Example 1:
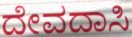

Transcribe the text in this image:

ದೇವದಾಸಿ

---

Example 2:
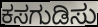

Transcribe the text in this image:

ಕಸಗುಡಿಸು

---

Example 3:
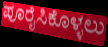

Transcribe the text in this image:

ಪೂರೈಸಿಕೊಳ್ಳಲು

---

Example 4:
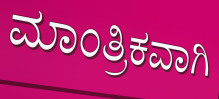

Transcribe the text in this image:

ಮಾಂತ್ರಿಕವಾಗಿ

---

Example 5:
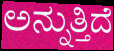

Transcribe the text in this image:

ಅನ್ನುತ್ತಿದೆ